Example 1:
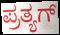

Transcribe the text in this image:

ಪ್ರತ್ಯಗ್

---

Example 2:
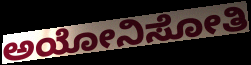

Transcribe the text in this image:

ಅಯೋನಿಸೋತಿ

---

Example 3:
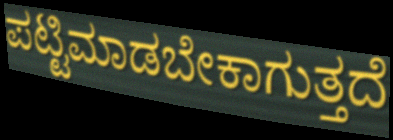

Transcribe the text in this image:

ಪಟ್ಟಿಮಾಡಬೇಕಾಗುತ್ತದೆ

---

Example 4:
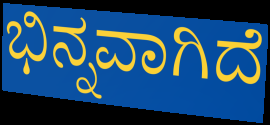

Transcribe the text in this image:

ಭಿನ್ನವಾಗಿದೆ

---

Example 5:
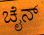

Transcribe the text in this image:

ಚೈನ್